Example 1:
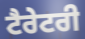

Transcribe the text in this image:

ਟੈਰੇਟਰੀ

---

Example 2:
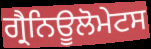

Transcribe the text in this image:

ਗ੍ਰੈਨਿਊਲੋਮੇਟਸ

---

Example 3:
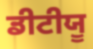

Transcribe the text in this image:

ਡੀਟੀਯੂ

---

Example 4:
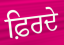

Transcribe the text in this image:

ਫ਼ਿਰਦੇ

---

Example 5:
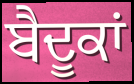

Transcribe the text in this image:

ਬੈਦੂਕਾਂ